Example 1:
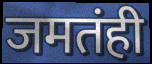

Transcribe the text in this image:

जमतंही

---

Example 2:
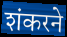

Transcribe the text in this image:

शंकरने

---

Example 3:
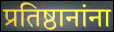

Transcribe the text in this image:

प्रतिष्ठानांना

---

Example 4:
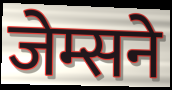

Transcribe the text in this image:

जेम्सने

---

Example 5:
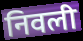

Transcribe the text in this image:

निवली